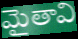
మైతావి